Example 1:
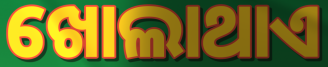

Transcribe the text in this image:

ଖୋଲାଥାଏ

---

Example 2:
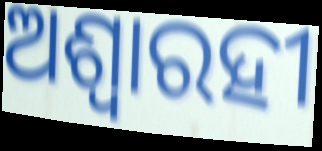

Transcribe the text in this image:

ଅଶ୍ୱାରହୀ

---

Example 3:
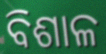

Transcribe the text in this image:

ବିଶାଳ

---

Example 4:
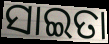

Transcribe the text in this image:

ସାଇତା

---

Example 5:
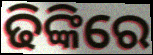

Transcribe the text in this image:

ଢିଙ୍କିରେ